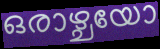
ഒരാഴ്ചയോ